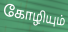
கோழியும்